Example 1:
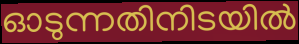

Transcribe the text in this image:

ഓടുന്നതിനിടയിൽ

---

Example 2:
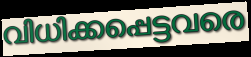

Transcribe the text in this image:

വിധിക്കപ്പെട്ടവരെ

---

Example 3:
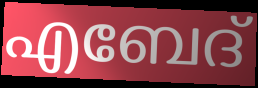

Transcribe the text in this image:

എബേദ്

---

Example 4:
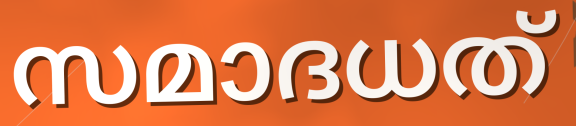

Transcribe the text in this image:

സമാദധത്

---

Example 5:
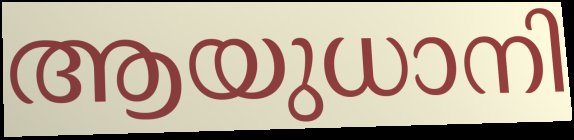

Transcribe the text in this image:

ആയുധാനി